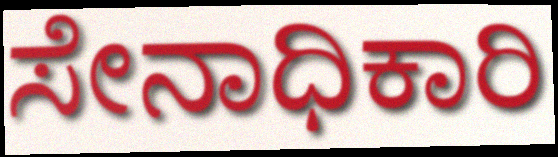
ಸೇನಾಧಿಕಾರಿ